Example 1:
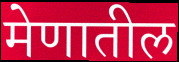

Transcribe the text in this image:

मेणातील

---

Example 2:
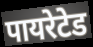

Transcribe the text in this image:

पायरेटेड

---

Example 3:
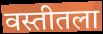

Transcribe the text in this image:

वस्तीतला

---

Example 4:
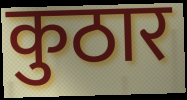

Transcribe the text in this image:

कुठार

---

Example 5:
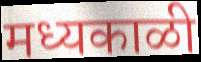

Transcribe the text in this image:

मध्यकाळी